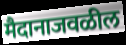
मैदानाजवळील